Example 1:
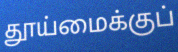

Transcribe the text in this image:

தூய்மைக்குப்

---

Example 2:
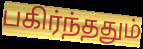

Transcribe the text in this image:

பகிர்ந்ததும்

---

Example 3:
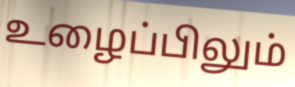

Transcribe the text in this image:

உழைப்பிலும்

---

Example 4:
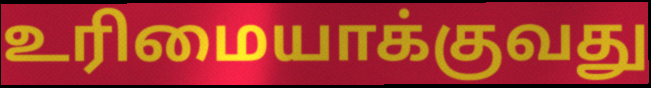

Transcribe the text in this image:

உரிமையாக்குவது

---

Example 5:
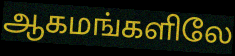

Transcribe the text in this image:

ஆகமங்களிலே